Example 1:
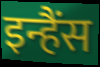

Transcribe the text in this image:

इन्हैंस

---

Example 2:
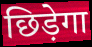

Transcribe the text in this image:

छिड़ेगा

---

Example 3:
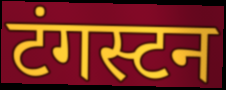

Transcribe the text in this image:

टंगस्टन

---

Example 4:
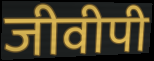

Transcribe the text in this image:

जीवीपी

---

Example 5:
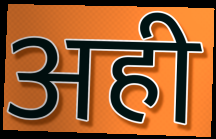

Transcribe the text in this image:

अही